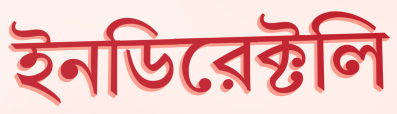
ইনডিরেক্টলি